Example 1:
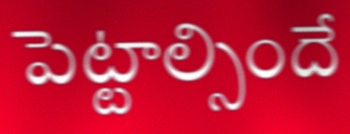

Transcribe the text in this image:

పెట్టాల్సిందే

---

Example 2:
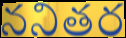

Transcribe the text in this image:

ననితర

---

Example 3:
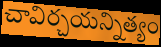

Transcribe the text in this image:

చావిర్చయన్నిత్యం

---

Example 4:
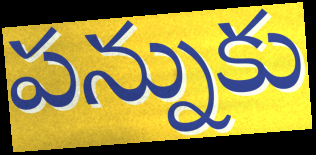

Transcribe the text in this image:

పన్నుకు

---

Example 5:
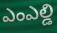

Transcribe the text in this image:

ఎంఎల్డి